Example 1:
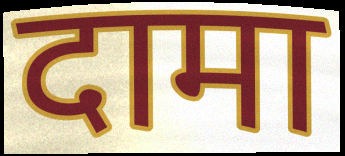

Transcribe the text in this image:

दामा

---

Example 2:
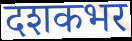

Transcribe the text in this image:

दशकभर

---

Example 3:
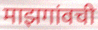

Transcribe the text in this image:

माझगांवची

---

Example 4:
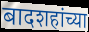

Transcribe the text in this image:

बादशहांच्या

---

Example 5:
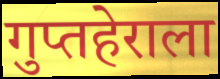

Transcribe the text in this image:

गुप्तहेराला